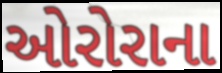
ઓરોરાના